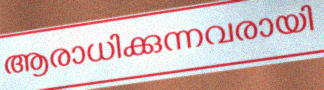
ആരാധിക്കുന്നവരായി